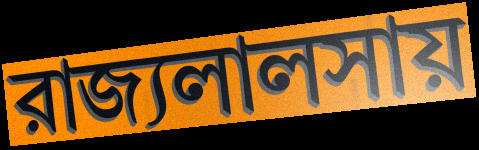
রাজ্যলালসায়